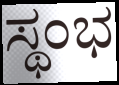
ಸ್ಥಂಭ